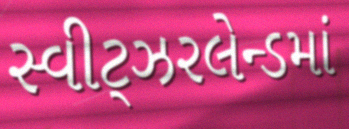
સ્વીટ્ઝરલેન્ડમાં